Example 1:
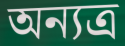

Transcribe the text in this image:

অন্যত্ৰ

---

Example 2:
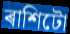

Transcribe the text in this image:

ৰাশিটো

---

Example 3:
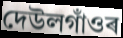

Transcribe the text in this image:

দেউলগাঁওৰ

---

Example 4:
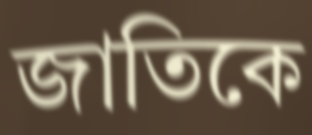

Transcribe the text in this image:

জাতিকে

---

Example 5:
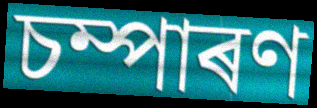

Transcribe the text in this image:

চম্পাৰণ